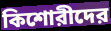
কিশোরীদের